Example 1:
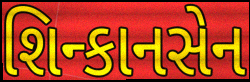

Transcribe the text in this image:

શિન્કાનસેન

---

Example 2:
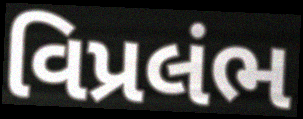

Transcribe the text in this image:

વિપ્રલંભ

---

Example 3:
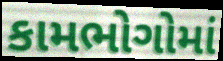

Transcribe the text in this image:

કામભોગોમાં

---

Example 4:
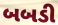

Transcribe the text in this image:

બબડી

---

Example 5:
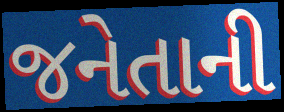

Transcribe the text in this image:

જનેતાની